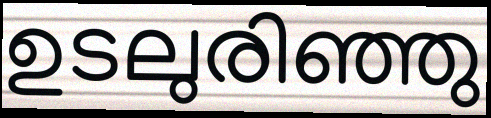
ഉടലുരിഞ്ഞു